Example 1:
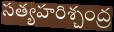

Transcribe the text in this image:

సత్యహరిశ్చంద్ర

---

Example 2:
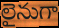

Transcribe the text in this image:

లైనుగా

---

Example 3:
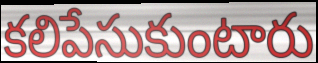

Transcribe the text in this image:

కలిపేసుకుంటారు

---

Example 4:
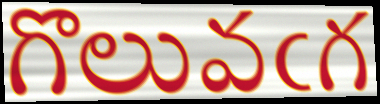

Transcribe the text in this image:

గొలువఁగ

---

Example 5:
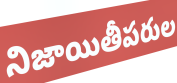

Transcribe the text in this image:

నిజాయితీపరుల